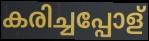
കരിച്ചപ്പോള്